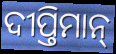
ଦୀପ୍ତିମାନ୍